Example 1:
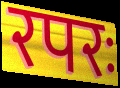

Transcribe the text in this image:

रपरः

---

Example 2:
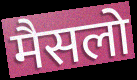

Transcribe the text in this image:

मैसलो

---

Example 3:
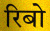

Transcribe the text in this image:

रिबो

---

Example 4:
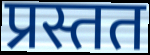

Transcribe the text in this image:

प्रस्तत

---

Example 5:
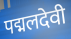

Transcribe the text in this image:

पद्मलदेवी